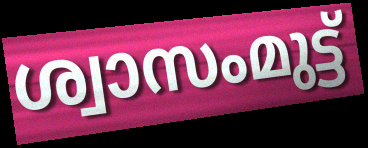
ശ്വാസംമുട്ട്